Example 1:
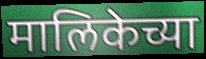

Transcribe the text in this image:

मालिकेच्या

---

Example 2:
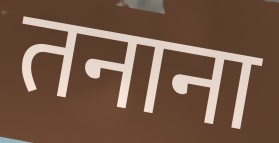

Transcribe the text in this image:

तनाना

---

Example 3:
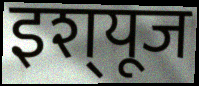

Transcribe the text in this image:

इश्यूज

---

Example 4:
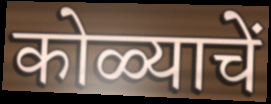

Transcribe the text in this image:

कोळ्याचें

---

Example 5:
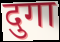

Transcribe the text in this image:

दुगा